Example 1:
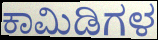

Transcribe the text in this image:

ಕಾಮಿಡಿಗಳ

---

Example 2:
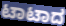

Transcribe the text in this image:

ಟಾಟಾದ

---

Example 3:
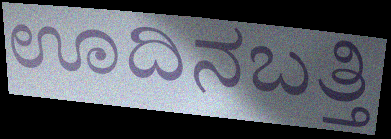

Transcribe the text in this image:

ಊದಿನಬತ್ತಿ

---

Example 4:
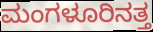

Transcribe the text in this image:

ಮಂಗಳೂರಿನತ್ತ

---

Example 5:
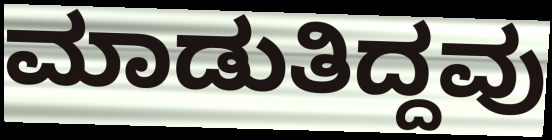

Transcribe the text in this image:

ಮಾಡುತಿದ್ದವು